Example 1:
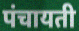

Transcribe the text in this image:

पंचायती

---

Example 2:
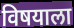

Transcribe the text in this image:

विषयाला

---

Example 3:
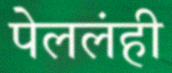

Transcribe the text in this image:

पेललंही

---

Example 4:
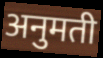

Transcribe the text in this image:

अनुमती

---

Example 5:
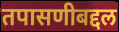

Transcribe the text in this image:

तपासणीबद्दल